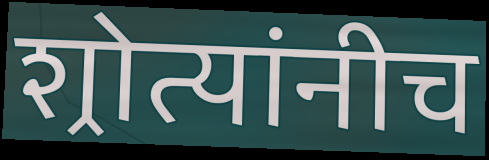
श्रोत्यांनीच